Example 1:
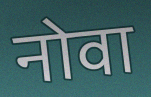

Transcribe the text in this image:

नोवा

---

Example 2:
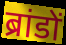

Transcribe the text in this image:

ब्रांडों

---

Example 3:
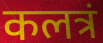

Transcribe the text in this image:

कलत्रं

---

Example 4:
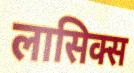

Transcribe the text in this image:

लासिक्स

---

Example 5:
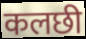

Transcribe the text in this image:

कलछी